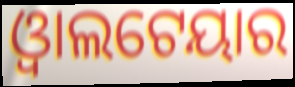
ଓ୍ୱାଲଟେୟାର